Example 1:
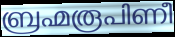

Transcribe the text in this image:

ബ്രഹ്മരൂപിണീ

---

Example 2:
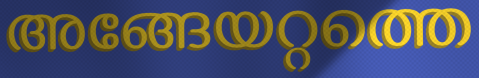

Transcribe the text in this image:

അങ്ങേയറ്റത്തെ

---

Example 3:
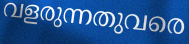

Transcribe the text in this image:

വളരുന്നതുവരെ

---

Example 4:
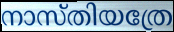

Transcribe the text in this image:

നാസ്തിയത്രേ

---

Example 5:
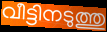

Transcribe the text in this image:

വീട്ടിനടുത്തു